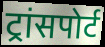
ट्रांसपोर्ट